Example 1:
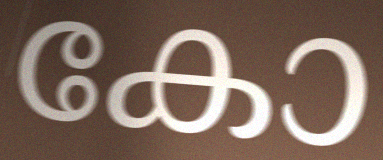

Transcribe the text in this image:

കോ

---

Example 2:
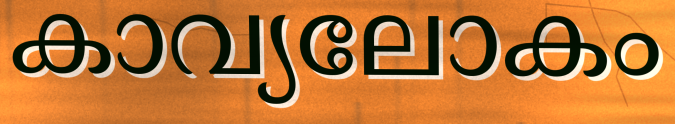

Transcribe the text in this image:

കാവ്യലോകം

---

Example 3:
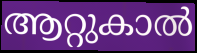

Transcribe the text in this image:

ആറ്റുകാൽ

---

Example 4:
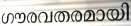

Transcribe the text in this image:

ഗൗരവതരമായി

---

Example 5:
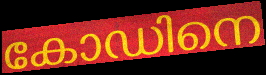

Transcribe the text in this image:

കോഡിനെ